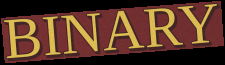
BINARY